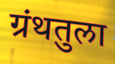
ग्रंथतुला